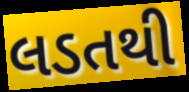
લડતથી